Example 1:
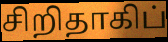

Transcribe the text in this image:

சிறிதாகிப்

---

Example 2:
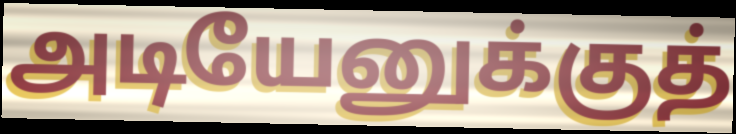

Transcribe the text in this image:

அடியேனுக்குத்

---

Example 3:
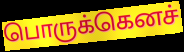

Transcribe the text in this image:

பொருக்கெனச்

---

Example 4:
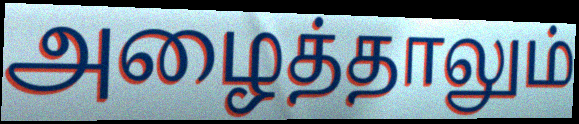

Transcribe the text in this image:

அழைத்தாலும்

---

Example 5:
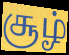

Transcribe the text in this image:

சூழ்